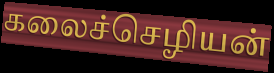
கலைச்செழியன்